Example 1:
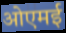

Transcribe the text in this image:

ओएमई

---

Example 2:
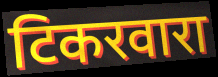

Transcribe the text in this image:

टिकरवारा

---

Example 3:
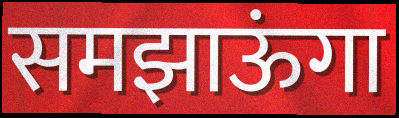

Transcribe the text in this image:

समझाऊंगा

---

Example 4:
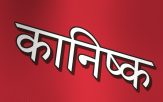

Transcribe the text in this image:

कानिष्क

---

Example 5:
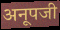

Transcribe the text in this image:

अनूपजी